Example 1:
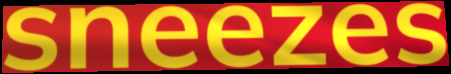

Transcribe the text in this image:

sneezes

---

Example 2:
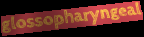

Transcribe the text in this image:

glossopharyngeal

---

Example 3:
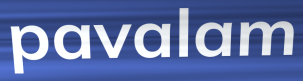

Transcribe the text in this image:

pavalam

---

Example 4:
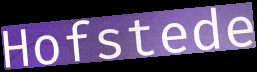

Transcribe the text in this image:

Hofstede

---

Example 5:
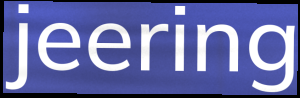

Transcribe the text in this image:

jeering